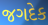
જગદેક